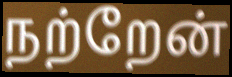
நற்றேன்